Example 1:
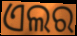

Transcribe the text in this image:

ଏଲର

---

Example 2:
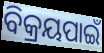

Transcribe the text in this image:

ବିକ୍ରୟପାଇଁ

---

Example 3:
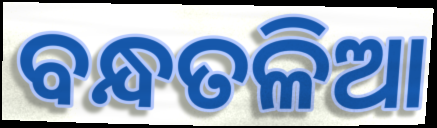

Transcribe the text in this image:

ବନ୍ଧତଳିଆ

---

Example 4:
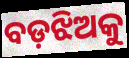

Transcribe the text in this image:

ବଡ଼ଝିଅକୁ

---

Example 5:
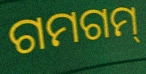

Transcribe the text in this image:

ଗମଗମ୍